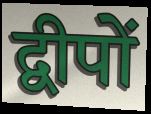
द्वीपों